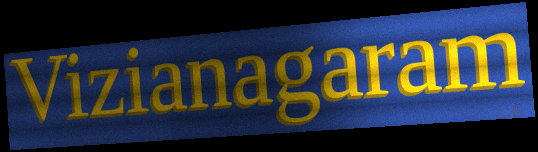
Vizianagaram